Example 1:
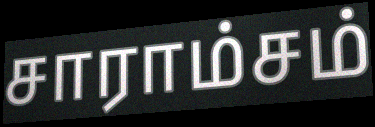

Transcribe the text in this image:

சாராம்சம்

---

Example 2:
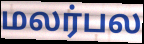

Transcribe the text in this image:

மலர்பல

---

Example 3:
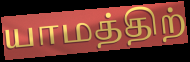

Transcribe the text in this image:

யாமத்திற்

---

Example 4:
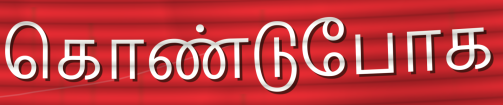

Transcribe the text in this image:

கொண்டுபோக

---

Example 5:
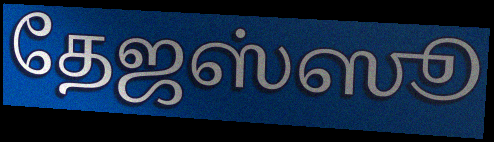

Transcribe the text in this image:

தேஜஸ்ஸூ